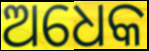
ଅଧେକ